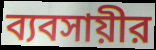
ব্যবসায়ীর